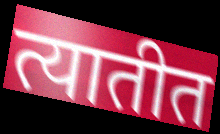
त्यातीत